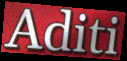
Aditi